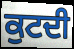
ਕੁਟਦੀ